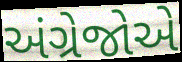
અંગ્રેજોએ